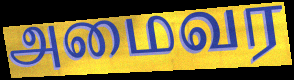
அமைவர